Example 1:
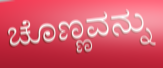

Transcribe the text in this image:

ಚೊಣ್ಣವನ್ನು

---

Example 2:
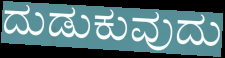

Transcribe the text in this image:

ದುಡುಕುವುದು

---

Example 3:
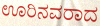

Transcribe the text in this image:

ಊರಿನವರಾದ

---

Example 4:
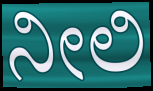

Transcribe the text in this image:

ನೀಲಿ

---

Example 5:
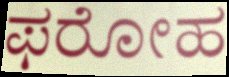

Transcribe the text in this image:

ಫರೋಹ